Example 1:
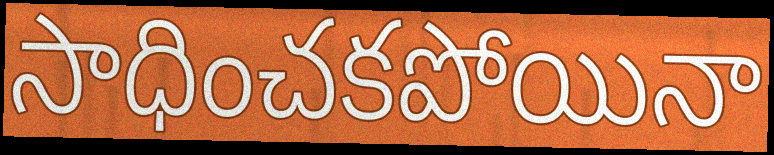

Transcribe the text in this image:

సాధించకపోయినా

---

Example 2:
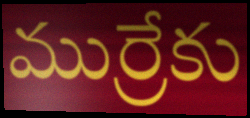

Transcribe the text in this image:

ముర్రేకు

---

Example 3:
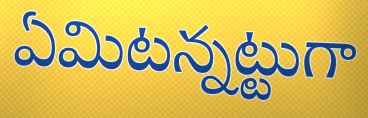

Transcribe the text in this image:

ఏమిటన్నట్టుగా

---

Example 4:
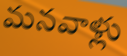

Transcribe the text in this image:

మనవాళ్లు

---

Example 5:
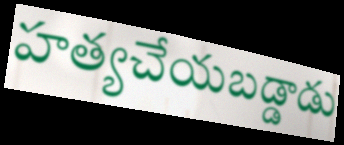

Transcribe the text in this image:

హత్యచేయబడ్డాడు